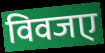
विवजए